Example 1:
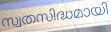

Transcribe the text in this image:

സ്വതസിദ്ധമായി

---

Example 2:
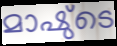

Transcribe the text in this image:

മാഷു്ടെ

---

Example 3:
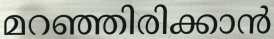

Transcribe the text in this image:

മറഞ്ഞിരിക്കാൻ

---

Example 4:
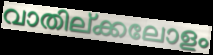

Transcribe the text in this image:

വാതില്ക്കലോളം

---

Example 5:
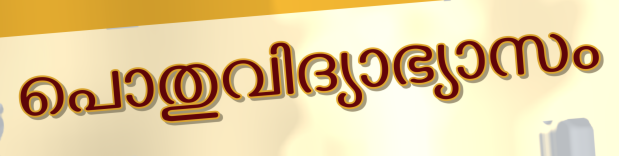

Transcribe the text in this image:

പൊതുവിദ്യാഭ്യാസം